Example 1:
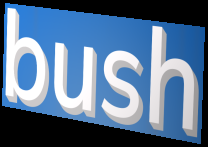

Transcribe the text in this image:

bush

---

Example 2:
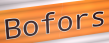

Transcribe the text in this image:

Bofors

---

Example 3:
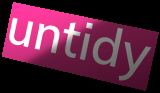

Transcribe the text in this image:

untidy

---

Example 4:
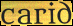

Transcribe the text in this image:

carid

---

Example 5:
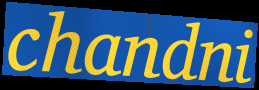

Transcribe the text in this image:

chandni